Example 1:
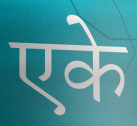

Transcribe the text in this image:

एके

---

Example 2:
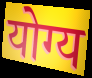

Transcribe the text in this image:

योग्य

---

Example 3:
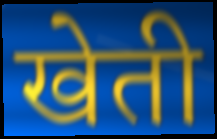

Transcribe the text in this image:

खेती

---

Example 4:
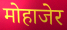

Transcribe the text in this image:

मोहाजेर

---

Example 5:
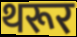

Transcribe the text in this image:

थरूर